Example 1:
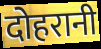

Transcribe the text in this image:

दोहरानी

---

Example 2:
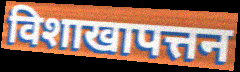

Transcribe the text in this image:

विशाखापत्तन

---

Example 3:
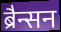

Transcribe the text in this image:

ब्रैन्सन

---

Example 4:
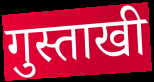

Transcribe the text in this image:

गुस्ताखी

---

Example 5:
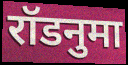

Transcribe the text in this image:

रॉडनुमा